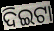
ଦିଇଟା